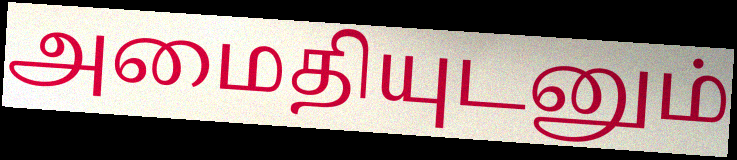
அமைதியுடனும்